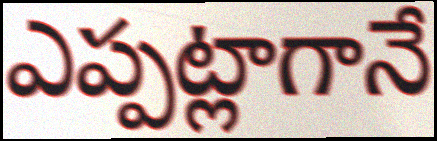
ఎప్పట్లాగానే